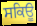
ਸਕਿਊ